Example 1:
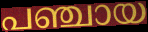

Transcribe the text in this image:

പഞ്ചായ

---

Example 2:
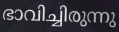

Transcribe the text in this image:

ഭാവിച്ചിരുന്നു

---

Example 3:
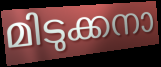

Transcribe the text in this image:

മിടുക്കനാ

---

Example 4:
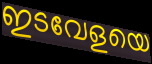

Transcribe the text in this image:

ഇടവേളയെ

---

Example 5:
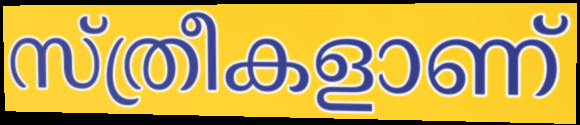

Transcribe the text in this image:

സ്ത്രീകളാണ്